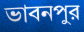
ভাবনপুর